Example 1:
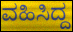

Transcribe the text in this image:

ವಹಿಸಿದ್ದ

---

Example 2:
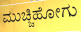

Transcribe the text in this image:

ಮುಚ್ಚಿಹೋಗು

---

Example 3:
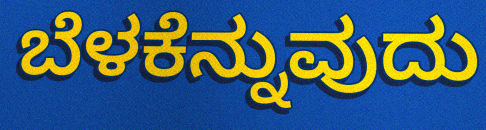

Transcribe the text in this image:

ಬೆಳಕೆನ್ನುವುದು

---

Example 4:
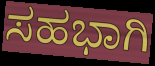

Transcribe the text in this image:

ಸಹಭಾಗಿ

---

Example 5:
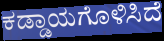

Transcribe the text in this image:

ಕಡ್ಡಾಯಗೊಳಿಸಿದೆ